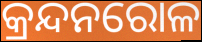
କ୍ରନ୍ଦନରୋଳ